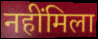
नहींमिला